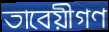
তাবেয়ীগণ